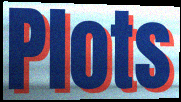
Plots